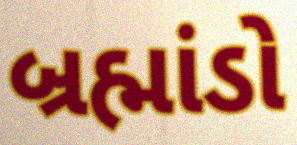
બ્રહ્માંડો